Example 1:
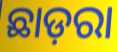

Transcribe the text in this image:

ଛାଡ଼ରା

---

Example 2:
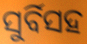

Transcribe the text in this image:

ସୁର୍ବିସହ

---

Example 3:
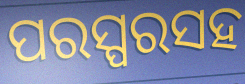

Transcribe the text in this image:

ପରସ୍ପରସହ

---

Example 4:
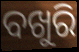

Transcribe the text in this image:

ବଖୁରି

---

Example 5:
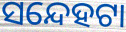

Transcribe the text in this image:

ସନ୍ଦେହଟା